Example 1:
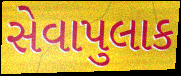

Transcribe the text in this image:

સેવાપુલાક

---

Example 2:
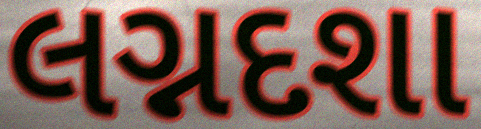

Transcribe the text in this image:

લગ્નદશા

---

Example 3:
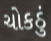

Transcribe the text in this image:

ચોકઠું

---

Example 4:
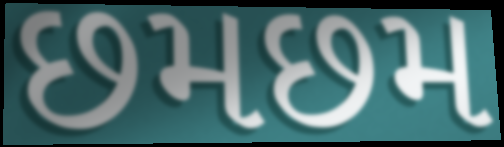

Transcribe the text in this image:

છમછમ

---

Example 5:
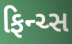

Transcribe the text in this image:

ફિન્ચ્સ